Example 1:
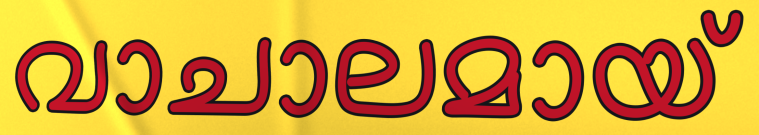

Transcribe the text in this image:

വാചാലമായ്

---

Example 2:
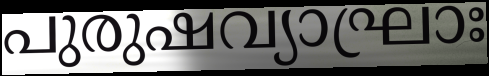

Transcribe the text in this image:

പുരുഷവ്യാഘ്രാഃ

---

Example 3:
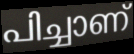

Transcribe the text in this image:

പിച്ചാണ്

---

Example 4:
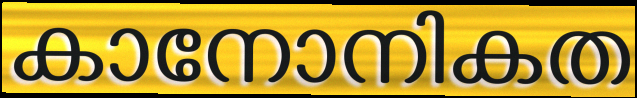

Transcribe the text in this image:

കാനോനികത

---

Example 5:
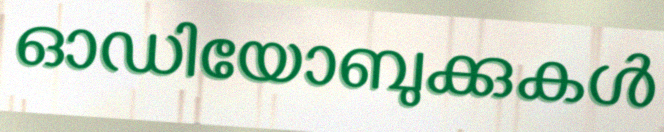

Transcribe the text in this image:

ഓഡിയോബുക്കുകൾ